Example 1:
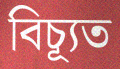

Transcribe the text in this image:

বিচ্যূত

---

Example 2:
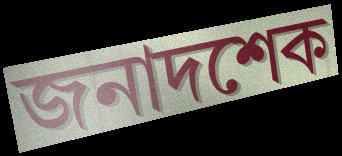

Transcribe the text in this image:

জনাদশেক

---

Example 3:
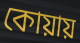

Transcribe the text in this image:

কোয়ায়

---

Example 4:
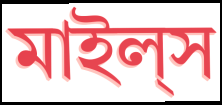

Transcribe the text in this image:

মাইল্‌স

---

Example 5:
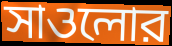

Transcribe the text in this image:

সাওলোর